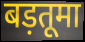
बड़तूमा